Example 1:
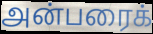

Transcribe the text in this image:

அன்பரைக்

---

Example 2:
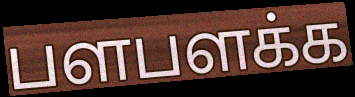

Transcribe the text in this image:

பளபளக்க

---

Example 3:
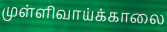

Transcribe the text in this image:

முள்ளிவாய்க்காலை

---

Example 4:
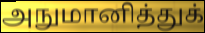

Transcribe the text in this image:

அநுமானித்துக்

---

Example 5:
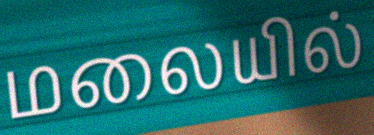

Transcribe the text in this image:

மலையில்